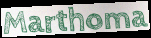
Marthoma